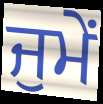
ਜੁਮੇਂ